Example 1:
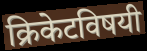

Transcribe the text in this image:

क्रिकेटविषयी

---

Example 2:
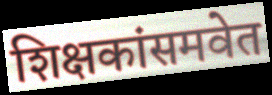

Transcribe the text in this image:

शिक्षकांसमवेत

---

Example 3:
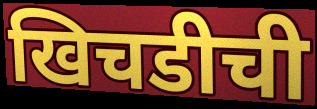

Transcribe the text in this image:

खिचडीची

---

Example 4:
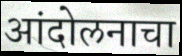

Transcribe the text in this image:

आंदोलनाचा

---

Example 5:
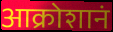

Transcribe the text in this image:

आक्रोशानं